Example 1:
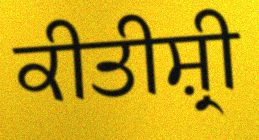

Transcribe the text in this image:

ਕੀਤੀਸ਼੍ਰੀ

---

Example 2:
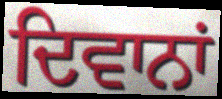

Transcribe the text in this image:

ਦਿਵਾਨਾਂ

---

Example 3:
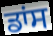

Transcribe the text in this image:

ਡਾਂਸ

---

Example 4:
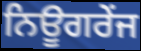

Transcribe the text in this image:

ਨਿਊਗਰੇਂਜ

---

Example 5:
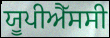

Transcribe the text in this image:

ਯੂਪੀਐੱਸਸੀ